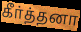
கீர்த்தனா